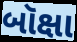
બૉક્ષા